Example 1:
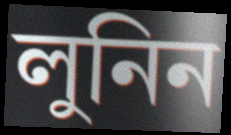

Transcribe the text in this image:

লুনিন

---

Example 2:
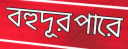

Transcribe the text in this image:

বহুদূরপারে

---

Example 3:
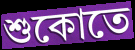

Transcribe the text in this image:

শুকোতে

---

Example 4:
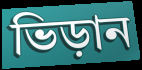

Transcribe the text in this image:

ভিড়ান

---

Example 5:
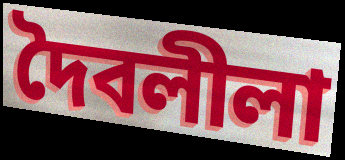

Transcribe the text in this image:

দৈবলীলা